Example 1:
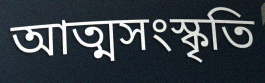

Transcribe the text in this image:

আত্মসংস্কৃতি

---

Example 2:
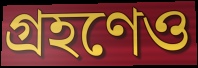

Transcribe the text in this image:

গ্রহণেও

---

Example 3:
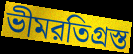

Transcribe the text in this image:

ভীমরতিগ্রস্ত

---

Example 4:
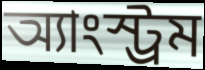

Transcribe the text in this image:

অ্যাংস্ট্রম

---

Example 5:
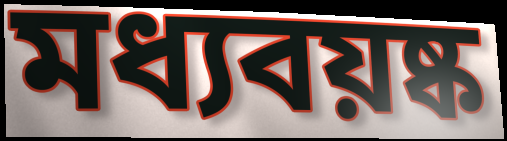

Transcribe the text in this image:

মধ্যবয়ষ্ক